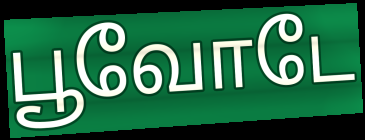
பூவோடே